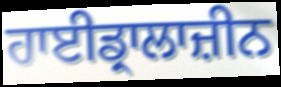
ਹਾਈਡ੍ਰਾਲਾਜ਼ੀਨ